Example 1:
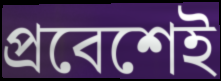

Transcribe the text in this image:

প্রবেশেই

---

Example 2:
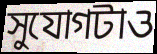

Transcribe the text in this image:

সুযোগটাও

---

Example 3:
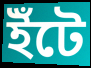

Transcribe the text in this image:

ইঁটে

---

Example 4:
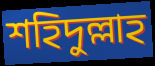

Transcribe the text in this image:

শহিদুল্লাহ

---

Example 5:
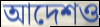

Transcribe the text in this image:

আদেশও